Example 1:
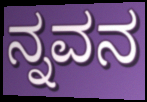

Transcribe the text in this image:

ನ್ನವನ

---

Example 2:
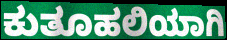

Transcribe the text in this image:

ಕುತೂಹಲಿಯಾಗಿ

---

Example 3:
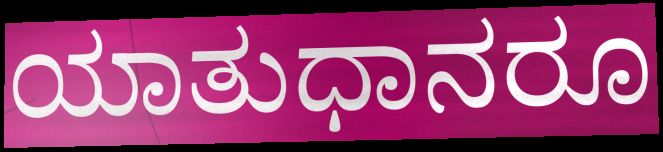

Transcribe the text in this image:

ಯಾತುಧಾನರೂ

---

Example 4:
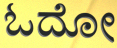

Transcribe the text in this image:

ಓದೋ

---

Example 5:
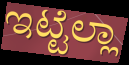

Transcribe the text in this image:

ಇಟ್ಟೆಲ್ಲಾ